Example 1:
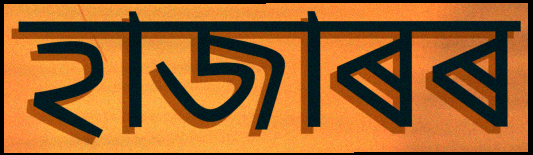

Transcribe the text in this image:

হাজাৰৰ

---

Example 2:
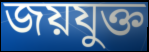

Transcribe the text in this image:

জয়যুক্ত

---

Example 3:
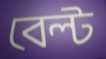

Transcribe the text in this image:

বেল্ট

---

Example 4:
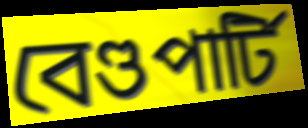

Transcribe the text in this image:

বেণ্ডপাৰ্টি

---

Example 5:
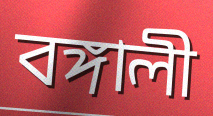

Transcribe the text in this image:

বঙ্গালী